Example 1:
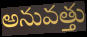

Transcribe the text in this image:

అనువత్తు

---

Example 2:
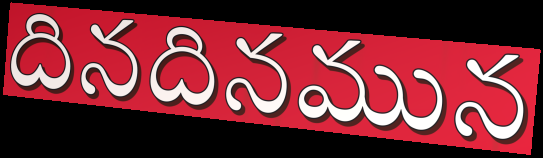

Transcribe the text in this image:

దినదినమున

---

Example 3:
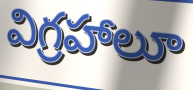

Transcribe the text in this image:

విగ్రహాలూ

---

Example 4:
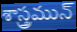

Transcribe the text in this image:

శాస్త్రమున్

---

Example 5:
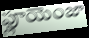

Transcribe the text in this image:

ఫ్లూయెంజా